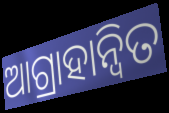
ଆଗ୍ରାହାନ୍ୱିତ